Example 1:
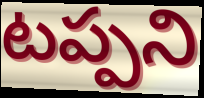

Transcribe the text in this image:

టప్పని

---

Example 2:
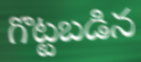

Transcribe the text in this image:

గొట్టబడిన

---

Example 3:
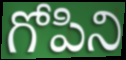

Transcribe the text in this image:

గోపిని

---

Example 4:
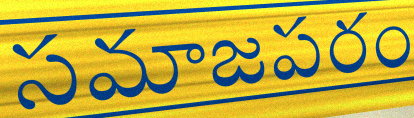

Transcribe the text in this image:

సమాజపరం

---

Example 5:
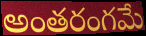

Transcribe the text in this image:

అంతరంగమే